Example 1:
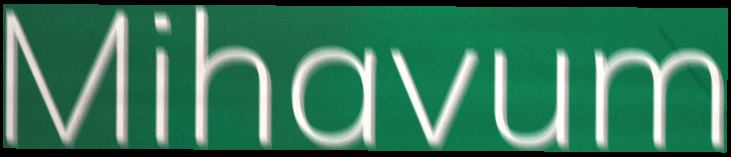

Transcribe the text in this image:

Mihavum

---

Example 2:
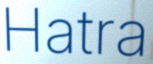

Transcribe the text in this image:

Hatra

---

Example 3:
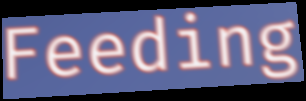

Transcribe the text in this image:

Feeding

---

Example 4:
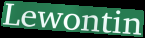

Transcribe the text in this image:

Lewontin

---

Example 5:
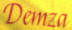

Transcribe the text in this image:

Demza